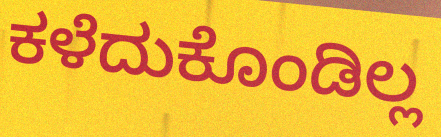
ಕಳೆದುಕೊಂಡಿಲ್ಲ